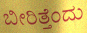
ಬೀರಿತ್ತೆಂದು